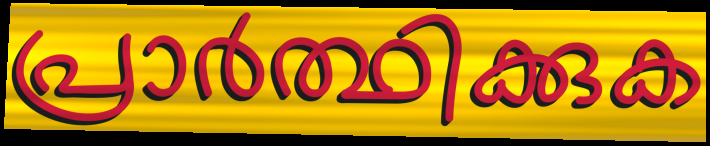
പ്രാർത്ഥിക്കുക